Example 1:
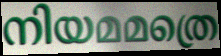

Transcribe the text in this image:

നിയമമത്രെ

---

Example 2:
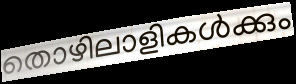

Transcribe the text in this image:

തൊഴിലാളികൾക്കും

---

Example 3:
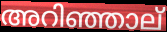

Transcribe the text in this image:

അറിഞ്ഞാല്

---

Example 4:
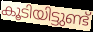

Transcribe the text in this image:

കൂടിയിട്ടുണ്ട്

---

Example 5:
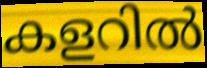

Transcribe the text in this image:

കളറിൽ